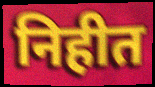
निहीत